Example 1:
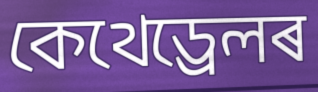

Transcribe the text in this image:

কেথেড্ৰেলৰ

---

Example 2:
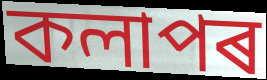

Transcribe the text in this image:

কলাপৰ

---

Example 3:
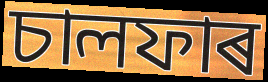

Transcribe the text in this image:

চালফাৰ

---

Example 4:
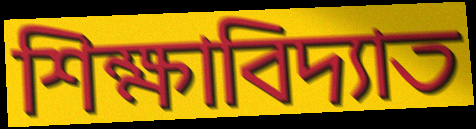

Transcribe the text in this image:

শিক্ষাবিদ্যাত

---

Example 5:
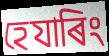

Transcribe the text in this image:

হেযাৰিং